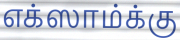
எக்ஸாம்க்கு